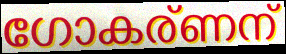
ഗോകര്ണന്